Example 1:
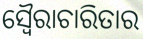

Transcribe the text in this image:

ସ୍ୱୈରାଚାରିତାର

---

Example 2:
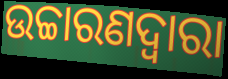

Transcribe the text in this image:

ଉଚ୍ଚାରଣଦ୍ଵାରା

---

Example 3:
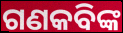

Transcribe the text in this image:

ଗଣକବିଙ୍କ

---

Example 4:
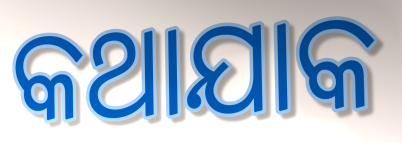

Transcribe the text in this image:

କଥାଯାକ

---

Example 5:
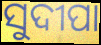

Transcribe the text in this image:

ସୁଦୀପା